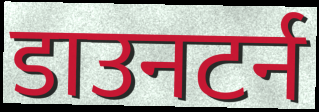
डाउनटर्न